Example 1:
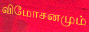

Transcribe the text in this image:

விமோசனமும்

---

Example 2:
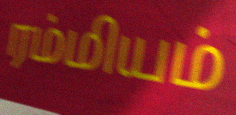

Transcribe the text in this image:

ரம்மியம்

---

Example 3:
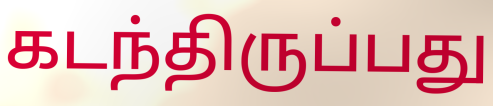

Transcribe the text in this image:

கடந்திருப்பது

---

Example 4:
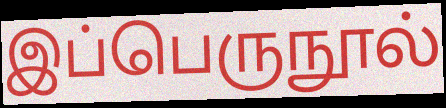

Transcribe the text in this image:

இப்பெருநூல்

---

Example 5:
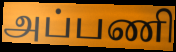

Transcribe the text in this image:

அப்பணி